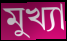
মুখ্যা